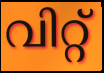
വിറ്റ്